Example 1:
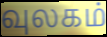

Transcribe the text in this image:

வுலகம்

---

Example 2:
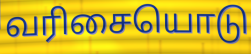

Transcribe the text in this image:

வரிசையொடு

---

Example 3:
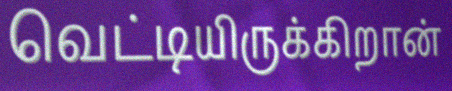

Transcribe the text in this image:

வெட்டியிருக்கிறான்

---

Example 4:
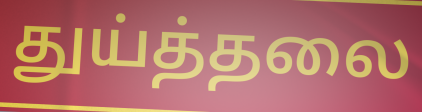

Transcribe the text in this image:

துய்த்தலை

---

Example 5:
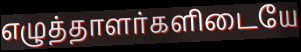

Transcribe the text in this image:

எழுத்தாளர்களிடையே